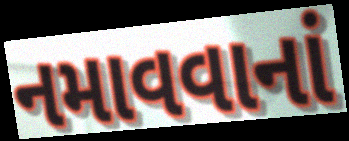
નમાવવાનાં